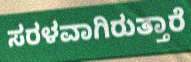
ಸರಳವಾಗಿರುತ್ತಾರೆ